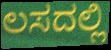
ಲಸದಲ್ಲಿ